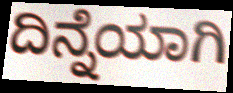
ದಿನ್ನೆಯಾಗಿ